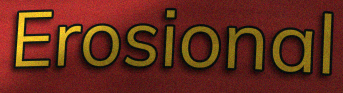
Erosional